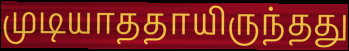
முடியாததாயிருந்தது